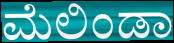
ಮೆಲಿಂಡಾ